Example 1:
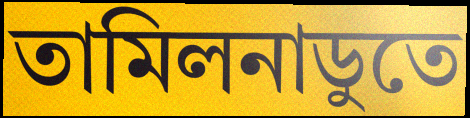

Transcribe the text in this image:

তামিলনাডুতে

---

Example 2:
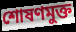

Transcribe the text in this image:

শোষণমুক্ত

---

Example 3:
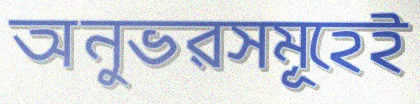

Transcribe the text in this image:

অনুভৱসমূহেই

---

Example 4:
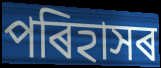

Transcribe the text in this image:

পৰিহাসৰ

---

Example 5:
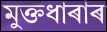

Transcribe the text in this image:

মুক্তধাৰাৰ